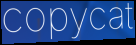
copycat